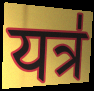
यत्र॑